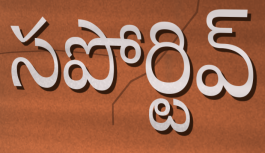
సపోర్టివ్